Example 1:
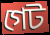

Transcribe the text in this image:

গেট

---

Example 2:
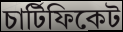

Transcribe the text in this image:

চাৰ্টিফিকেট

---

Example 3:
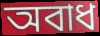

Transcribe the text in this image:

অবাধ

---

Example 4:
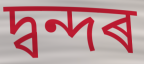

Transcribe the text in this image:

দ্বন্দৰ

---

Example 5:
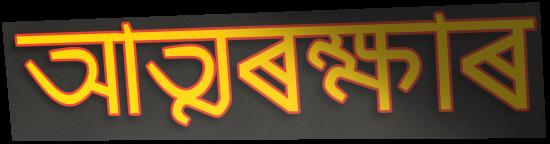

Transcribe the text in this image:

আত্মৰক্ষাৰ